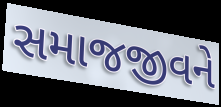
સમાજજીવને